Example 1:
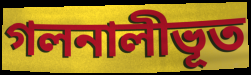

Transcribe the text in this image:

গলনালীভূত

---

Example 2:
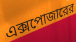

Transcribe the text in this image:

এক্সপোজারের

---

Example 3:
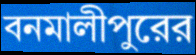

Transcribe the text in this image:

বনমালীপুরের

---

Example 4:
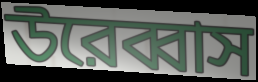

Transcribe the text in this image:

উরেব্বাস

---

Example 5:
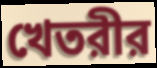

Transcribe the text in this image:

খেতরীর